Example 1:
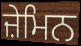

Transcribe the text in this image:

ਜ਼ੇਮਿਨ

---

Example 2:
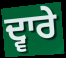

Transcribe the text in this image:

ਦ੍ਵਾਰੇ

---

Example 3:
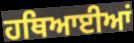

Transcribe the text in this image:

ਹਥਿਆਈਆਂ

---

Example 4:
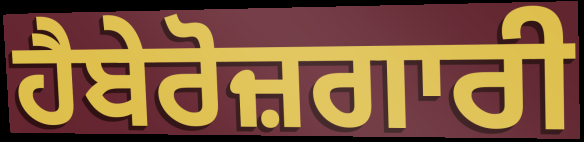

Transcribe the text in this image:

ਹੈਬੇਰੋਜ਼ਗਾਰੀ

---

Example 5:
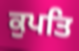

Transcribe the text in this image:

ਕੁਪਤਿ